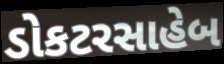
ડોકટરસાહેબ